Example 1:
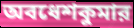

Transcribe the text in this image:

অবধেশকুমার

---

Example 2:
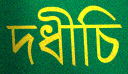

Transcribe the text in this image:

দধীচি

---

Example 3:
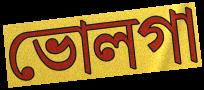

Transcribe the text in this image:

ভোলগা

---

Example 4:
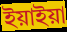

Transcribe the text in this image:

ইয়াইয়া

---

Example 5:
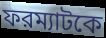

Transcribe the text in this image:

ফরম্যাটকে